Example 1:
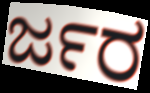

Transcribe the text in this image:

ರ್ಜರ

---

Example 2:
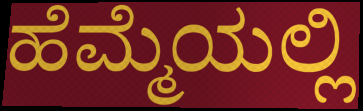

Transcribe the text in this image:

ಹೆಮ್ಮೆಯಲ್ಲಿ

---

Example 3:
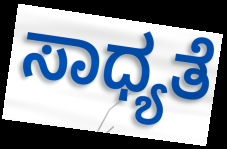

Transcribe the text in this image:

ಸಾಧ್ಯತೆ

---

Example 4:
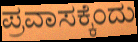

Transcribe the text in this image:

ಪ್ರವಾಸಕ್ಕೆಂದು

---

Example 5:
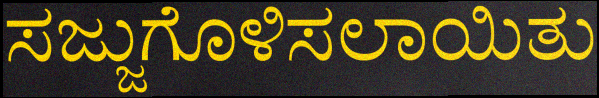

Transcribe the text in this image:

ಸಜ್ಜುಗೊಳಿಸಲಾಯಿತು